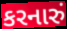
કરનારું